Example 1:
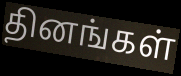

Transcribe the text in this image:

தினங்கள்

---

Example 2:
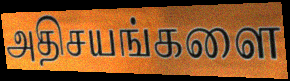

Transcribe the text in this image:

அதிசயங்களை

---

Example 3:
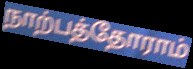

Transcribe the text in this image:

நாற்பத்தோராம்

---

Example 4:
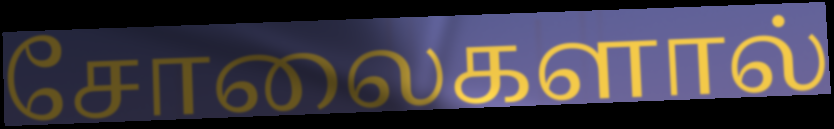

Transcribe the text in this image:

சோலைகளால்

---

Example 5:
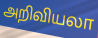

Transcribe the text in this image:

அறிவியலா